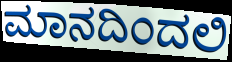
ಮಾನದಿಂದಲಿ